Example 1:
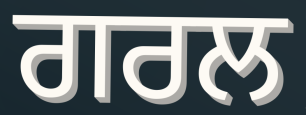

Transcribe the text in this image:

ਗਰਲ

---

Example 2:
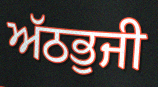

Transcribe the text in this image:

ਅੱਠਭੁਜੀ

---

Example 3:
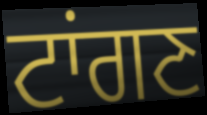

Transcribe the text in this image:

ਟਾਂਗਣ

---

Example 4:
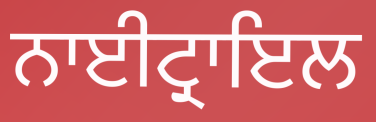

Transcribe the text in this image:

ਨਾਈਟ੍ਰਾਇਲ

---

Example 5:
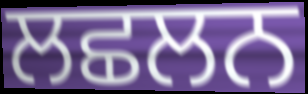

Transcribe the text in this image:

ਲਛਲਨ